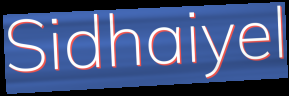
Sidhaiyel